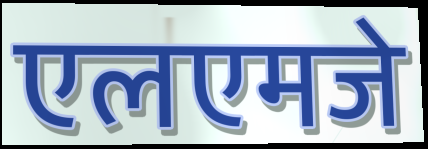
एलएमजे